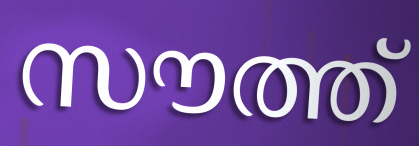
സൗത്ത്